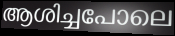
ആശിച്ചപോലെ